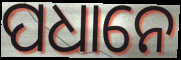
ପଧାନେ